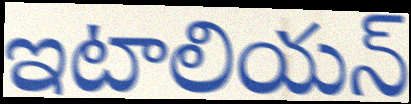
ఇటాలియన్